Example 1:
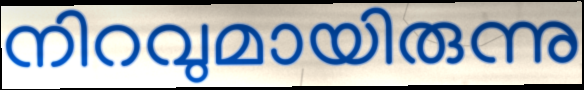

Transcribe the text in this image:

നിറവുമായിരുന്നു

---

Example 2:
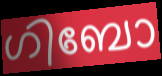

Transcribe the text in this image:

ഗിബോ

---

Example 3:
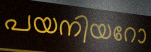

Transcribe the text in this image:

പയനിയറോ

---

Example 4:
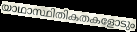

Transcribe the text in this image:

യാഥാസ്ഥിതികതകളോടും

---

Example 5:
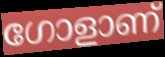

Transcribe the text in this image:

ഗോളാണ്